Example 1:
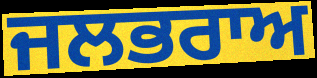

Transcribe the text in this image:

ਜਲਭਰਾਅ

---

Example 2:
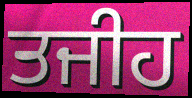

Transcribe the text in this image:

ਤਜੀਹ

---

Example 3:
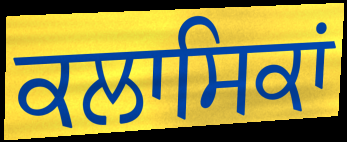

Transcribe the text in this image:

ਕਲਾਸਿਕਾਂ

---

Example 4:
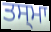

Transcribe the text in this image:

ਤਸ੍ਮਾ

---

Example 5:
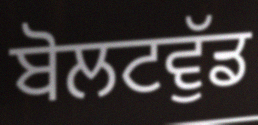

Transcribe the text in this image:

ਬੋਲਟਵੁੱਡ